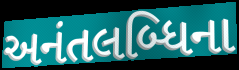
અનંતલબ્ધિના